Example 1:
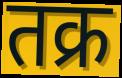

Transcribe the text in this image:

तक्र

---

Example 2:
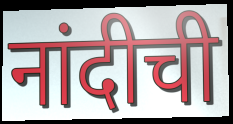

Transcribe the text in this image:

नांदीची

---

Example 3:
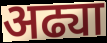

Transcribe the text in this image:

अढ्या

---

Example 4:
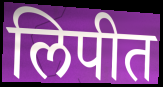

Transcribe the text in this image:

लिपीत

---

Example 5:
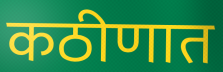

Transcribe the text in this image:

कठीणात